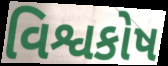
વિશ્વકોષ